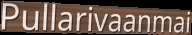
Pullarivaanmai